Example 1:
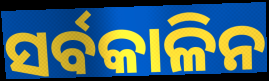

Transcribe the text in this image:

ସର୍ବକାଳିନ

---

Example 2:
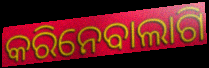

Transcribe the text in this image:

କରିନେବାଲାଗି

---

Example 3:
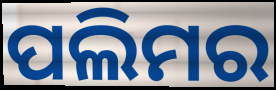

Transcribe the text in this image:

ପଲିମର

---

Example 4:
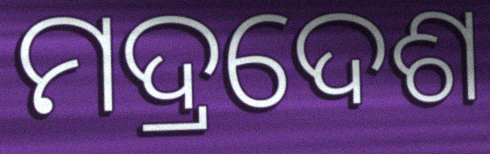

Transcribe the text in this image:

ମଦ୍ରଦେଶ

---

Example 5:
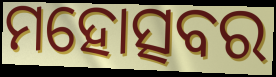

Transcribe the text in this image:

ମହୋତ୍ସବର